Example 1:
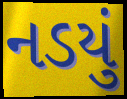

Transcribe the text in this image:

નડયું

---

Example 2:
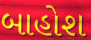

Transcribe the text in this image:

બાહોશ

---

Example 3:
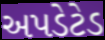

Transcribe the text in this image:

અપડેટેડ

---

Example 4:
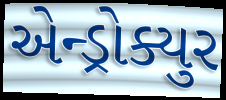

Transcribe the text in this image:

એન્ડ્રોક્યુર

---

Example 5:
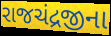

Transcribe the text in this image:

રાજચંદ્રજીના